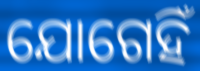
ଯୋଗେହିଁ